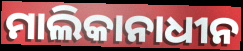
ମାଲିକାନାଧୀନ